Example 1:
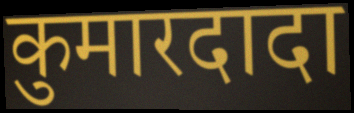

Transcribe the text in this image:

कुमारदादा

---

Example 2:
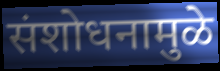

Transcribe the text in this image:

संशोधनामुळे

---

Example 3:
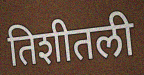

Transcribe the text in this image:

तिशीतली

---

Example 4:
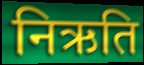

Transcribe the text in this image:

निऋति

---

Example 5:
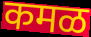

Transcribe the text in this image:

कमळ